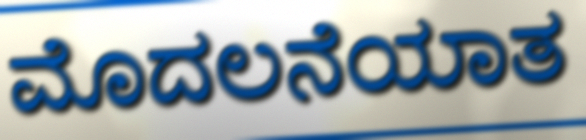
ಮೊದಲನೆಯಾತ